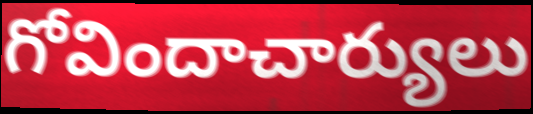
గోవిందాచార్యులు